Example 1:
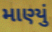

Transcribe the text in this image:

માણ્યું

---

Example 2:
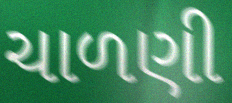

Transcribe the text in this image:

ચાળણી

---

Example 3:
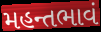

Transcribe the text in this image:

મહન્તભાવં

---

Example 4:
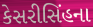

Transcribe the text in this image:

કેસરીસિંહના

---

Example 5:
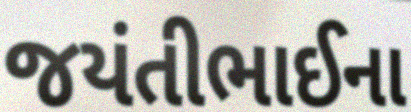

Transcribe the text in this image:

જયંતીભાઈના